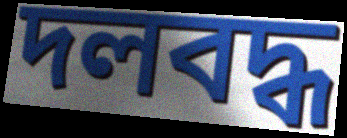
দলবদ্ধ